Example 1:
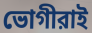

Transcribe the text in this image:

ভোগীরাই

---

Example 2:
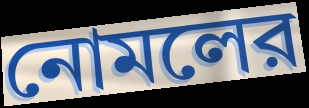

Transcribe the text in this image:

নোমলের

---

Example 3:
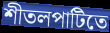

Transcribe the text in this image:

শীতলপাটিতে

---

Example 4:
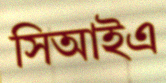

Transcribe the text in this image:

সিআইএ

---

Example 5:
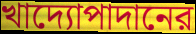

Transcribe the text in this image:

খাদ্যোপাদানের